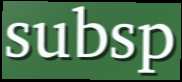
subsp